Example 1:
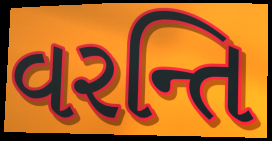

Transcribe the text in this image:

વરન્તિ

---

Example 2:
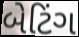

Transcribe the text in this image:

બેટિંગ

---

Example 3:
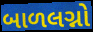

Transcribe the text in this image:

બાળલગ્નો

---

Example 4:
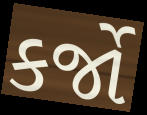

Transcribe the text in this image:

કર્જો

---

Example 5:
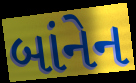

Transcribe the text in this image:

બાંનેન